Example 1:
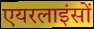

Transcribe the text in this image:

एयरलाइंसों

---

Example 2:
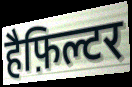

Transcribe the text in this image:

हैफ़िल्टर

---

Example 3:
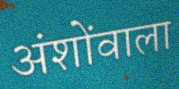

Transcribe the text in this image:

अंशोंवाला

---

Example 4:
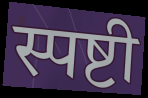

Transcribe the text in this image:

स्पष्टी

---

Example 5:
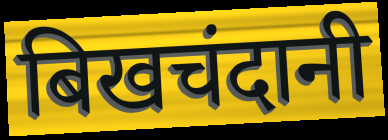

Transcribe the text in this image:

बिखचंदानी